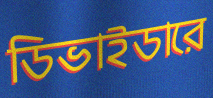
ডিভাইডারে